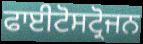
ਫਾਈਟੋਸਟ੍ਰੋਜਨ